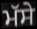
ਮੱਸੇ